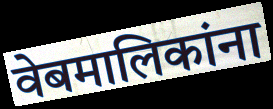
वेबमालिकांना